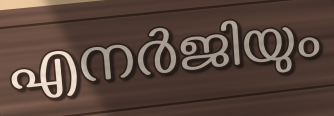
എനർജിയും